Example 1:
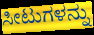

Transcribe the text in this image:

ಸೀಟುಗಳನ್ನು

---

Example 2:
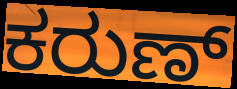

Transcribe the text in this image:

ಕರುಣ್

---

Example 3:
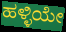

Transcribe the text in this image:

ಹಳ್ಳಿಯೇ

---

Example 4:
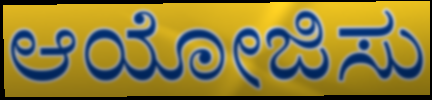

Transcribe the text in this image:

ಆಯೋಜಿಸು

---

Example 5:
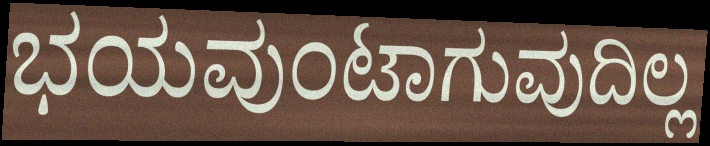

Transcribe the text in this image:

ಭಯವುಂಟಾಗುವುದಿಲ್ಲ